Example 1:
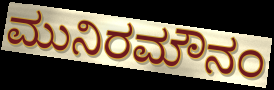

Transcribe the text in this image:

ಮುನಿರಮೌನಂ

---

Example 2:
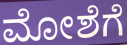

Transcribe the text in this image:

ಮೋಶೆಗೆ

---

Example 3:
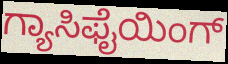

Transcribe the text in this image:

ಗ್ಯಾಸಿಫೈಯಿಂಗ್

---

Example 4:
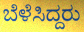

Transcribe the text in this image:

ಬೆಳೆಸಿದ್ದರು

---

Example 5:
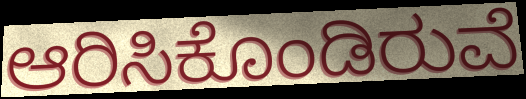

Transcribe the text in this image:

ಆರಿಸಿಕೊಂಡಿರುವೆ